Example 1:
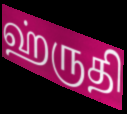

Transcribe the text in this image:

ஹ்ருதி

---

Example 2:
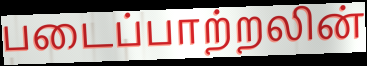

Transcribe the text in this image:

படைப்பாற்றலின்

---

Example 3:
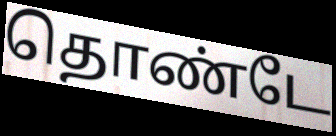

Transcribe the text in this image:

தொண்டே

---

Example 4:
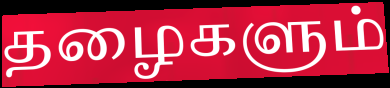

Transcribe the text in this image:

தழைகளும்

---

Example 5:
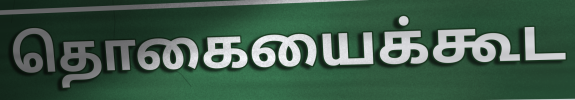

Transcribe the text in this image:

தொகையைக்கூட